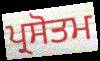
ਪ੍ਰਸੋਤਮ